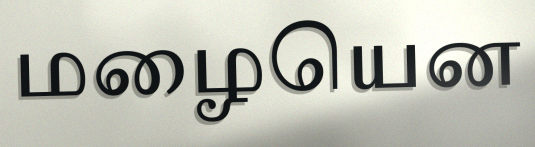
மழையென